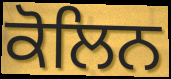
ਕੋਲਿਨ